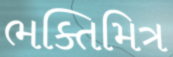
ભક્તિમિત્ર